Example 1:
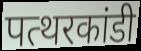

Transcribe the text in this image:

पत्थरकांडी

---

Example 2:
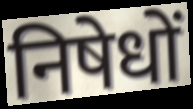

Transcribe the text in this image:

निषेधों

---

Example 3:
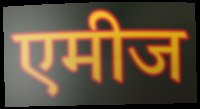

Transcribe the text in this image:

एमीज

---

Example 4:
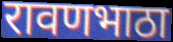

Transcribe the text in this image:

रावणभाठा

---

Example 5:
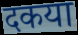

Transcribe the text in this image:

दकया